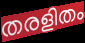
തരളിതം